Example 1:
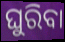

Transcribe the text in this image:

ଘୁରିବା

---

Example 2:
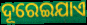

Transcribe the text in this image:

ଦୂରେଇଯାଏ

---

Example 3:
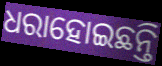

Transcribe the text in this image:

ଧରାହୋଇଛନ୍ତି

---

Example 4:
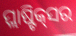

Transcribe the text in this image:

ପ୍ଲାଷ୍ଟିକ୍‌ସର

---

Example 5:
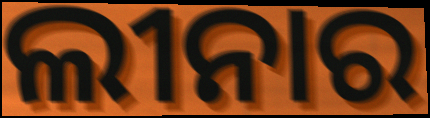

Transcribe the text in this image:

ଲୀନାର